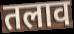
तलाव